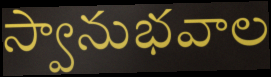
స్వానుభవాల